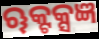
ୠକ୍ଟକ୍ସଜ୍ଞ